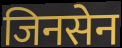
जिनसेन